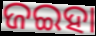
ଜଇହା